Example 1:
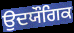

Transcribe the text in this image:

ਉਦਯੌਗਿਕ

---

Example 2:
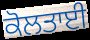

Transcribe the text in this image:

ਕੋਲਤਾਈ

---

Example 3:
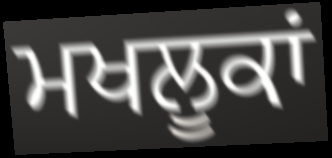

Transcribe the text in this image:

ਮਖਲੂਕਾਂ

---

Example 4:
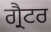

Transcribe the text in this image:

ਗ੍ਰੈਟਰ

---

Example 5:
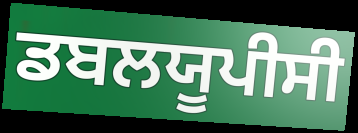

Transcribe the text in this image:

ਡਬਲਯੂਪੀਸੀ